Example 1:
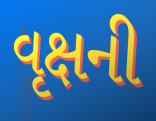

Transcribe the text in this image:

વૃક્ષની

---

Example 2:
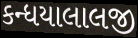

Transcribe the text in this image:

કન્ધયાલાલજી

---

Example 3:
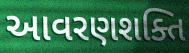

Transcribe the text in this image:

આવરણશક્તિ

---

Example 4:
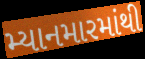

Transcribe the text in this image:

મ્યાનમારમાંથી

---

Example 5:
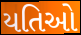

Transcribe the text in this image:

યતિઓ